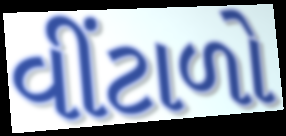
વીંટાળો